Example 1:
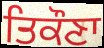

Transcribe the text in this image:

ਤਿਕੌਣਾ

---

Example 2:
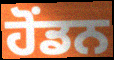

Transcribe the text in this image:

ਹੋਂਡਨ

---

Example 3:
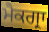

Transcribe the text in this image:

ਮੈਕਗ੍ਰਾ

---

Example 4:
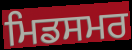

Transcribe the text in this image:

ਮਿਡਸਮਰ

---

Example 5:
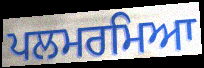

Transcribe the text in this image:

ਪਲਮਰਮਿਆ